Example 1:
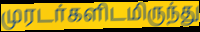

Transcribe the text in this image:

முரடர்களிடமிருந்து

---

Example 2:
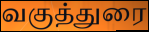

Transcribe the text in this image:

வகுத்துரை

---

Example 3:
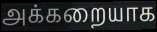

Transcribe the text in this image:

அக்கறையாக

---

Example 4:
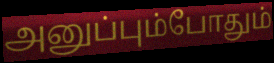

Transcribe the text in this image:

அனுப்பும்போதும்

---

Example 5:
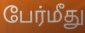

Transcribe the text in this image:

பேர்மீது